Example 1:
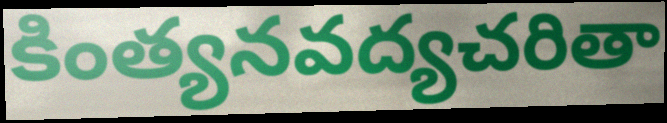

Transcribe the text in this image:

కింత్యనవద్యచరితా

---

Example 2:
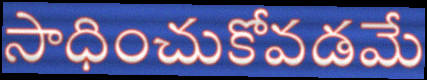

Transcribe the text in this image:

సాధించుకోవడమే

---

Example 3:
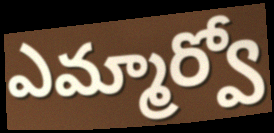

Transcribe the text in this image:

ఎమ్మార్వో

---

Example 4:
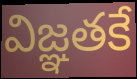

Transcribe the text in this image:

విజ్ఞతకే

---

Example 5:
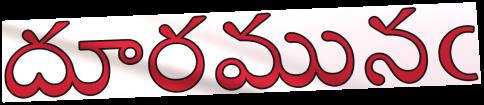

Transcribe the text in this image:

దూరమునఁ